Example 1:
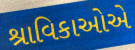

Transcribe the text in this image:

શ્રાવિકાઓએ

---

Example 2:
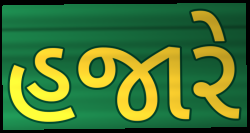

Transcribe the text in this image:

હજારે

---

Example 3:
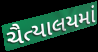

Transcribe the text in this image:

ચૈત્યાલયમાં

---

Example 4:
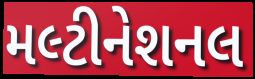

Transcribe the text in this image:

મલ્ટીનેશનલ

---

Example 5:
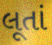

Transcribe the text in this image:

લૂતાં